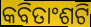
କବିତାଂଶଟି